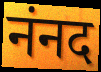
नंनद